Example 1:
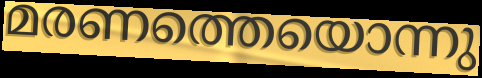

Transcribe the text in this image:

മരണത്തെയൊന്നു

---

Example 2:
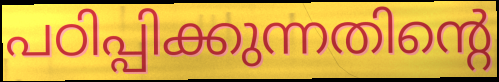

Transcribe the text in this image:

പഠിപ്പിക്കുന്നതിന്റെ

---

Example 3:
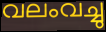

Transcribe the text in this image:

വലംവച്ചു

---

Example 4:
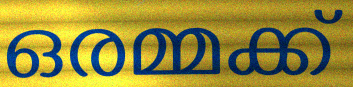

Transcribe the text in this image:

ഒരമ്മക്ക്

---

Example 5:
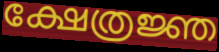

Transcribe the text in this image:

ക്ഷേത്രജ്ഞ